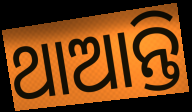
ଥାଆନ୍ତି